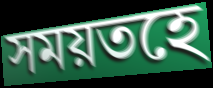
সময়তহে